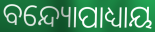
ବନ୍ଦ୍ୟୋପାଧ୍ୟାୟ